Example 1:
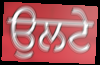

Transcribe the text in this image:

ਉਲਟੇ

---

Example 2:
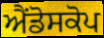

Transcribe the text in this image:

ਐਂਡੋਸਕੋਪ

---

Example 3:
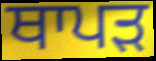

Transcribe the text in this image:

ਥਾਪੜ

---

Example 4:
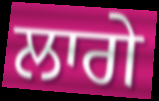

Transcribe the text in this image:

ਲਾਗੇ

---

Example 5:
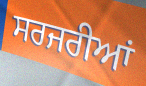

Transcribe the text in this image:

ਸਰਜਰੀਆਂ